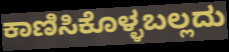
ಕಾಣಿಸಿಕೊಳ್ಳಬಲ್ಲದು